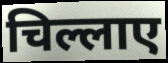
चिल्लाए